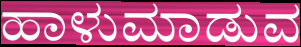
ಹಾಳುಮಾಡುವ